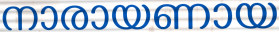
നാരായണായ